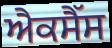
ਐਕਸੈੱਸ